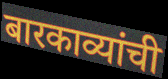
बारकाव्यांची